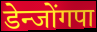
डेन्जोंगपा